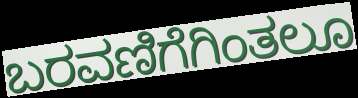
ಬರವಣಿಗೆಗಿಂತಲೂ